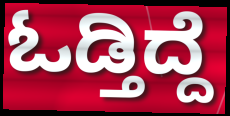
ಓಡ್ತಿದ್ದೆ